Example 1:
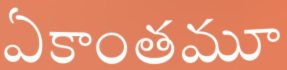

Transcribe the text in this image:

ఏకాంతమూ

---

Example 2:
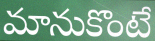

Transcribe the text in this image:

మానుకొంటే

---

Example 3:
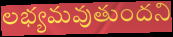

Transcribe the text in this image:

లభ్యమవుతుందని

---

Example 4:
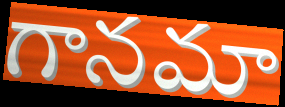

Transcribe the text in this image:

గానమా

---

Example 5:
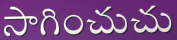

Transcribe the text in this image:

సాగించుచు